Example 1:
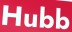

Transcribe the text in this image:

Hubb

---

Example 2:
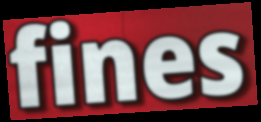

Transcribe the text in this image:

fines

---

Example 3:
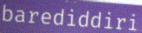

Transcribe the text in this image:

barediddiri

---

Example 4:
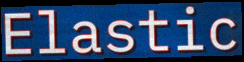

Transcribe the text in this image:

Elastic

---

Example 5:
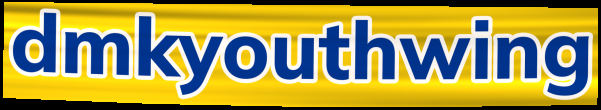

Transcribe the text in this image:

dmkyouthwing